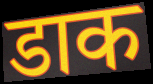
डाक